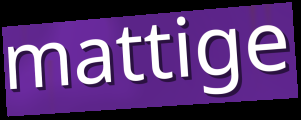
mattige